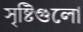
সৃষ্টিগুলো